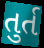
તુર્ત